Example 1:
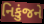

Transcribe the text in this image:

નિકુંજને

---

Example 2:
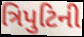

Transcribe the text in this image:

ત્રિપુટિની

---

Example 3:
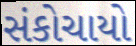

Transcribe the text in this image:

સંકોચાયો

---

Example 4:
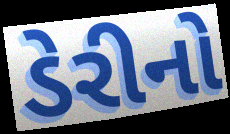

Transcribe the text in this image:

ડેરીનો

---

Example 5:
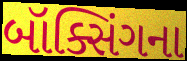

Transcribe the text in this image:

બૉક્સિંગના